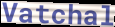
Vatchal